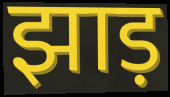
झाड़